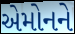
એમોનને